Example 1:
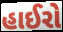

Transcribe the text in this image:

હાઈરો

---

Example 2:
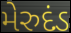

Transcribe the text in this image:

મેરુદંડ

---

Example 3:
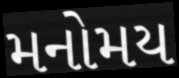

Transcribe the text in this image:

મનોમય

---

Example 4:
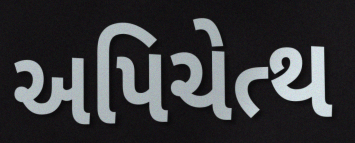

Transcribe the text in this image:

અપિચેત્થ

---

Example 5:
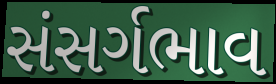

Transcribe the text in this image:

સંસર્ગભાવ